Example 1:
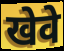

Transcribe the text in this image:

खेवे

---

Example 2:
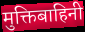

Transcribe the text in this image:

मुक्तिबाहिनी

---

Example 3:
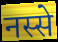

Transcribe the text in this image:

नस्से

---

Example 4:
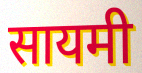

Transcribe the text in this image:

सायमी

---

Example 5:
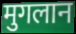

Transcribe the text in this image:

मुगलान